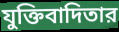
যুক্তিবাদিতার